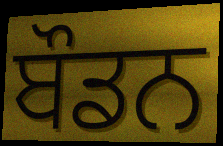
ਬੌਡਨ